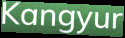
Kangyur